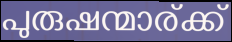
പുരുഷന്മാര്ക്ക്